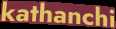
kathanchi